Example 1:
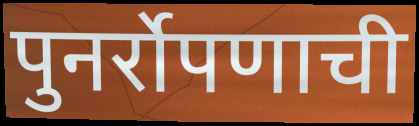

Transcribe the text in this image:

पुनर्रोपणाची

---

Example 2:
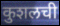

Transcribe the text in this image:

कुशलची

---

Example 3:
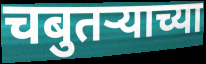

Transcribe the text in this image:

चबुतर्‍याच्या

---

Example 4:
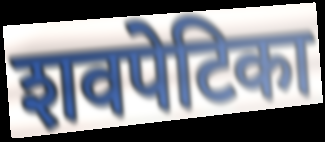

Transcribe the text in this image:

शवपेटिका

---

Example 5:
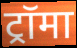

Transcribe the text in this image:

ट्रॉमा